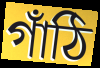
গাঁঠি